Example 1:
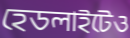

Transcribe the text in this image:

হেডলাইটেও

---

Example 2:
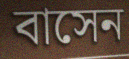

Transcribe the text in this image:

বাসেন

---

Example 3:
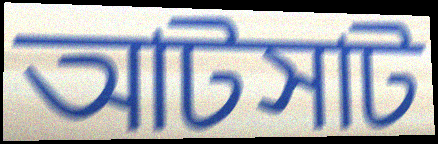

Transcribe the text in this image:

আটসাট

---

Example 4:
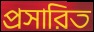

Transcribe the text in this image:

প্রসারিত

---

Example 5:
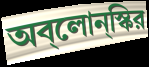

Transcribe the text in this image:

অব্‌লোন্‌স্কির